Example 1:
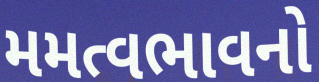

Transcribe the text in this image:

મમત્વભાવનો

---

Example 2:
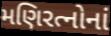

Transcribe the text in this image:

મણિરત્નોનાં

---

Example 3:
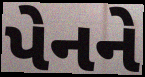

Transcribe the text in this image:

પેનને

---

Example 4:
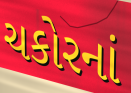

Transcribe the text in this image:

ચકોરનાં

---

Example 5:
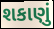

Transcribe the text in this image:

શકાણું